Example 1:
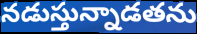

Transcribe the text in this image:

నడుస్తున్నాడతను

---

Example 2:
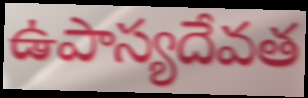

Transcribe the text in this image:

ఉపాస్యదేవత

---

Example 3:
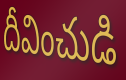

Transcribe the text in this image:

దీవించుడి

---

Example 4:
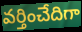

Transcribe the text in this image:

వర్తించేదిగా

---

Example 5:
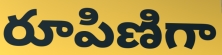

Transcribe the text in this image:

రూపిణిగా